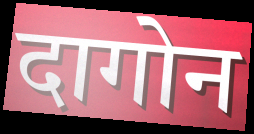
दागोन